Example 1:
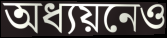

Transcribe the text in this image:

অধ্যয়নেও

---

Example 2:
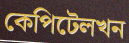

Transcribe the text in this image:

কেপিটেলখন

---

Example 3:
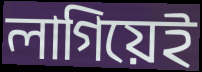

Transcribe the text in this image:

লাগিয়েই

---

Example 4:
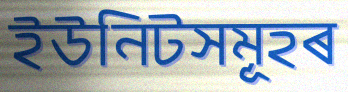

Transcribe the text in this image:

ইউনিটসমূহৰ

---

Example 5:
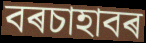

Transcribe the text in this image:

বৰচাহাবৰ